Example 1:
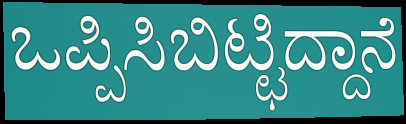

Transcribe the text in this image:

ಒಪ್ಪಿಸಿಬಿಟ್ಟಿದ್ದಾನೆ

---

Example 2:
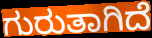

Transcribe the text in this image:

ಗುರುತಾಗಿದೆ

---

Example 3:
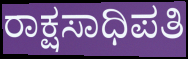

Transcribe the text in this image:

ರಾಕ್ಷಸಾಧಿಪತಿ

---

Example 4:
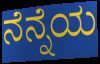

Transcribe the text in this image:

ನೆನ್ನೆಯ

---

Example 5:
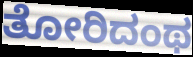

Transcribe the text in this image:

ತೋರಿದಂಥ